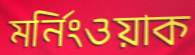
মর্নিংওয়াক